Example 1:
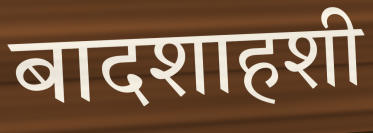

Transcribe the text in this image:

बादशाहशी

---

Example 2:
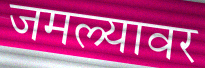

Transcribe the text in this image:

जमल्यावर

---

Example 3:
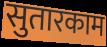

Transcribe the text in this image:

सुतारकाम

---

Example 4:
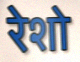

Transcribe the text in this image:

रेशो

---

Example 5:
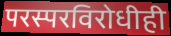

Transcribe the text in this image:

परस्परविरोधीही